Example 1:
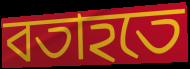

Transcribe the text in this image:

বতাহতে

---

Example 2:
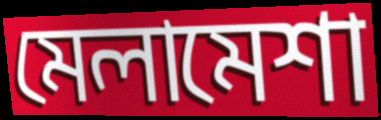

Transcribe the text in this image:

মেলামেশা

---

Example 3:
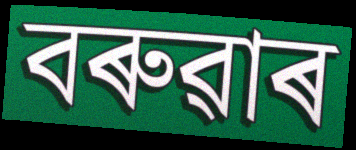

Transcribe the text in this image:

বৰুৱাৰ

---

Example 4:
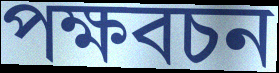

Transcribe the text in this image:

পক্ষবচন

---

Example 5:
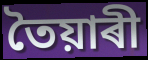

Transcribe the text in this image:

তৈয়াৰী